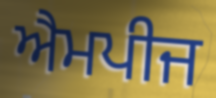
ਐਮਪੀਜ